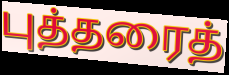
புத்தரைத்